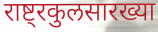
राष्ट्रकुलसारख्या